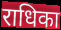
राधिका